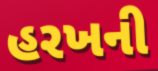
હરખની